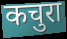
कचुरा